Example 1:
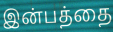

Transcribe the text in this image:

இன்பத்தை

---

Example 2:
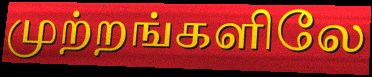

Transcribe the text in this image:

முற்றங்களிலே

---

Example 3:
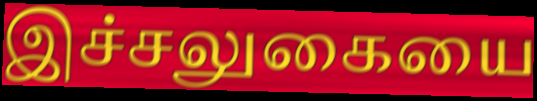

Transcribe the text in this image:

இச்சலுகையை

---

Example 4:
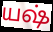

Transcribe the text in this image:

யஷ்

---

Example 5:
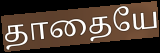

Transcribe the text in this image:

தாதையே